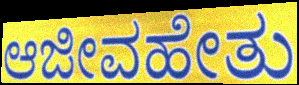
ಆಜೀವಹೇತು